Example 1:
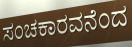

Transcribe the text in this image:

ಸಂಚಕಾರವನೆಂದ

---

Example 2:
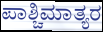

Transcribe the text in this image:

ಪಾಶ್ಚಿಮಾತ್ಯರ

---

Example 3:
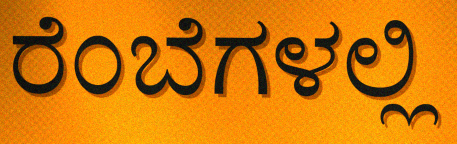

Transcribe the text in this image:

ರೆಂಬೆಗಳಲ್ಲಿ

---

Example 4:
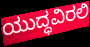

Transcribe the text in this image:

ಯುದ್ಧವಿರಲಿ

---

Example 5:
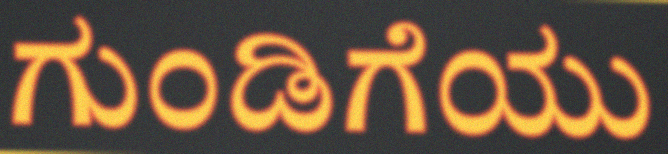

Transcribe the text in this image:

ಗುಂಡಿಗೆಯು